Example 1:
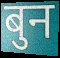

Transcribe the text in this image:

बुन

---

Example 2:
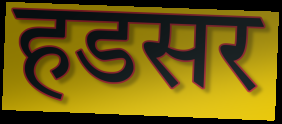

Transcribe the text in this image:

हडसर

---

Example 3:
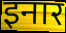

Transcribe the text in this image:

इनार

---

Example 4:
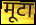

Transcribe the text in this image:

मूटा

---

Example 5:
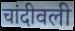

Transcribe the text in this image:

चांदीवली